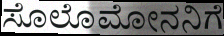
ಸೊಲೊಮೋನನಿಗೆ